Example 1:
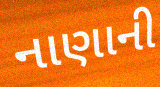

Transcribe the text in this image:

નાણાની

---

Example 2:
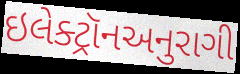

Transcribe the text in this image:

ઇલેક્ટ્રૉનઅનુરાગી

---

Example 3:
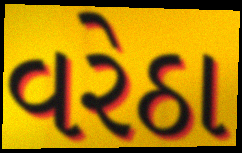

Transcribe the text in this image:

વરેઠા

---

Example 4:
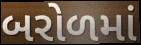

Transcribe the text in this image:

બરોળમાં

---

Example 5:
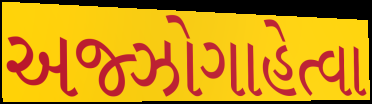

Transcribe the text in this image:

અજ્ઝોગાહેત્વા